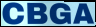
CBGA